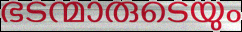
ഭടന്മാരുടെയും